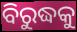
ବିରୁଦ୍ଧକୁ